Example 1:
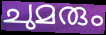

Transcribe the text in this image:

ചുമരും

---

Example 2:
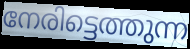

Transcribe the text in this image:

നേരിട്ടെത്തുന്ന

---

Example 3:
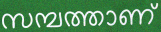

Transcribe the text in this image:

സമ്പത്താണ്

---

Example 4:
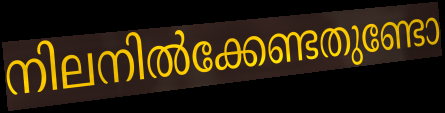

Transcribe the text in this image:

നിലനിൽക്കേണ്ടതുണ്ടോ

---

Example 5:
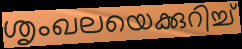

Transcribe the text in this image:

ശൃംഖലയെക്കുറിച്ച്